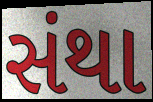
સંથા